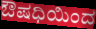
ಔಷಧಿಯಿಂದ